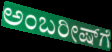
ಅಂಬರೀಷ್‌ಗೆ